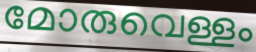
മോരുവെള്ളം